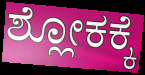
ಶ್ಲೋಕಕ್ಕೆ